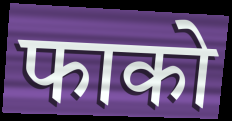
फाको